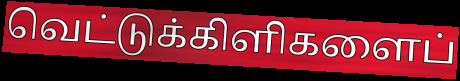
வெட்டுக்கிளிகளைப்